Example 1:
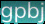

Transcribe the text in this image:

gpbj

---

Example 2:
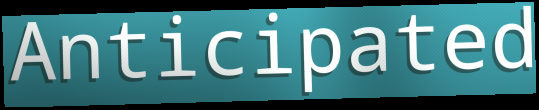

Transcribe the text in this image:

Anticipated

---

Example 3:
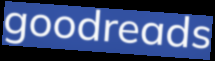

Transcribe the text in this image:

goodreads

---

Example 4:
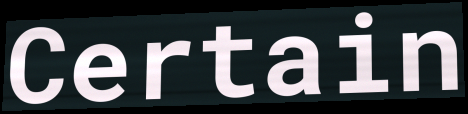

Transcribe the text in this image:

Certain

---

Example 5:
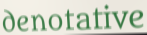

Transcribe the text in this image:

denotative